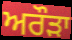
ਅਰੌੜਾ